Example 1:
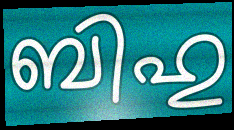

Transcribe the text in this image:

ബിഹു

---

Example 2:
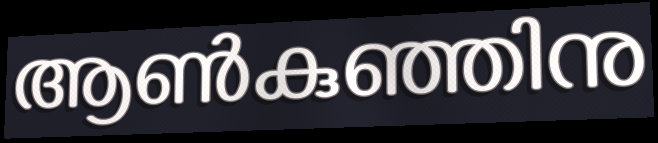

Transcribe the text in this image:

ആൺകുഞ്ഞിനു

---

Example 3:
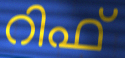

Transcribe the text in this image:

റിഫ്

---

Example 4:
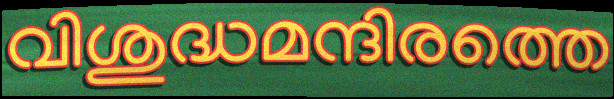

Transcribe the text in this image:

വിശുദ്ധമന്ദിരത്തെ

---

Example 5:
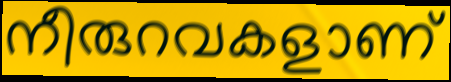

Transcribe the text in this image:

നീരുറവകളാണ്